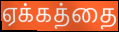
ஏக்கத்தை